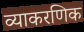
व्याकरणिक